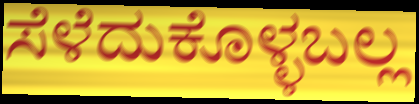
ಸೆಳೆದುಕೊಳ್ಳಬಲ್ಲ